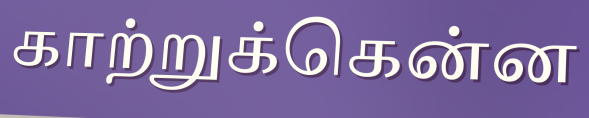
காற்றுக்கென்ன